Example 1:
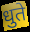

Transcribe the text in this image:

धुते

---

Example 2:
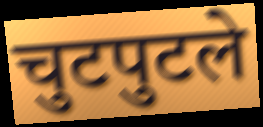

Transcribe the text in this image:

चुटपुटले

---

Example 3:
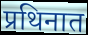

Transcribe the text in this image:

प्रथिनात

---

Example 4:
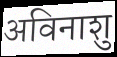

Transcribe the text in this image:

अविनाशु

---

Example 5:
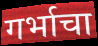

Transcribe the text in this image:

गर्भाचा